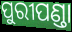
ପୁରୀପଣ୍ଡା